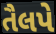
તૈલપે